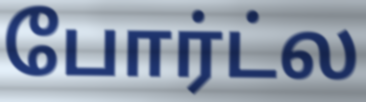
போர்ட்ல